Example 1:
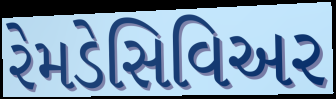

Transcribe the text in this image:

રેમડેસિવિઅર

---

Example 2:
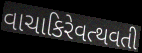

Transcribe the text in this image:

વાચાકિરેવત્થવતી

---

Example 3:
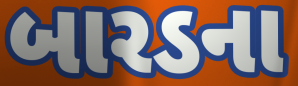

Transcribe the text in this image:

બારડના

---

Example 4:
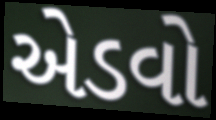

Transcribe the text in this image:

એડવો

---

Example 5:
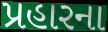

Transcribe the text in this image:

પ્રહારના